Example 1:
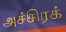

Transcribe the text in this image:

அச்சிரக்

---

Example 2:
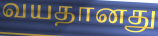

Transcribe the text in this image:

வயதானது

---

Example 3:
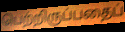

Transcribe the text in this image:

பெற்றிருப்பதைப்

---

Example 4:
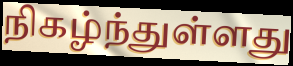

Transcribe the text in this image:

நிகழ்ந்துள்ளது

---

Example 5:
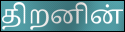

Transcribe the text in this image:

திறனின்